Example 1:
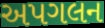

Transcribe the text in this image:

અપગલન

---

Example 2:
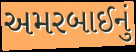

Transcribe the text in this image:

અમરબાઈનું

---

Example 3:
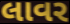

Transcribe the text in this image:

લાવર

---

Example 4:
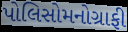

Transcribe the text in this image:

પોલિસોમનોગ્રાફી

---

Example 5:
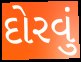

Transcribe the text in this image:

દોરવું